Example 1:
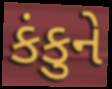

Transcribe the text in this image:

કંકુને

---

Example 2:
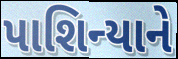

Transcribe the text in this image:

પાશિન્યાને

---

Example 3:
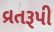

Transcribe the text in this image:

વ્રતરૂપી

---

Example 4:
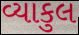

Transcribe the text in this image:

વ્યાકુલ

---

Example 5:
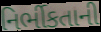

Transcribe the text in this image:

નિર્ભીકતાની